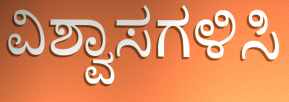
ವಿಶ್ವಾಸಗಳಿಸಿ